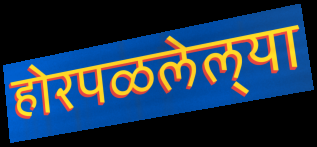
होरपळलेल्या